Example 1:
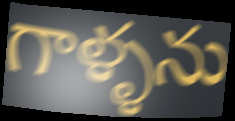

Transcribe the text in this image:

గాళ్ళను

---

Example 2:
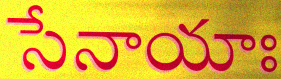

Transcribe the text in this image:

సేనాయాః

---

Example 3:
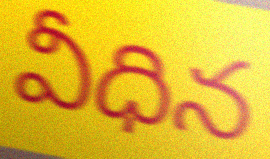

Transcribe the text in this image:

వీధిన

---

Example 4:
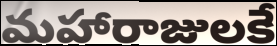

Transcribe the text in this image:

మహారాజులకే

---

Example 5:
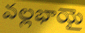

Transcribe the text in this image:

వల్లభాయై